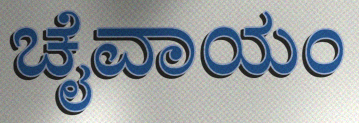
ಚೈವಾಯಂ